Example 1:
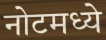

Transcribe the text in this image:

नोटमध्ये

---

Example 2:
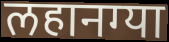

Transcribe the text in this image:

लहानग्या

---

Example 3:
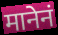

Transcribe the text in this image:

मानेनं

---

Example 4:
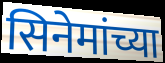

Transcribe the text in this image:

सिनेमांच्या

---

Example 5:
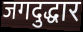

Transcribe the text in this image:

जगदुद्धार